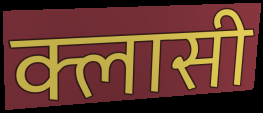
क्लासी